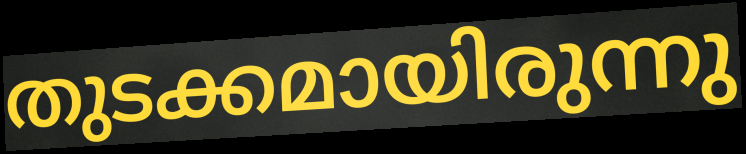
തുടക്കമായിരുന്നു